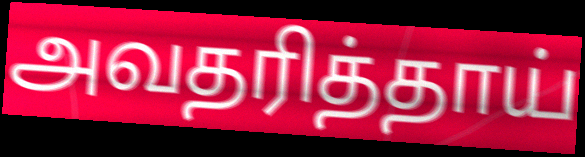
அவதரித்தாய்